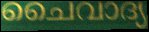
ചൈവാദ്യ